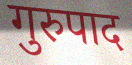
गुरुपाद